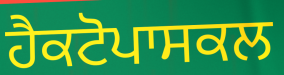
ਹੈਕਟੋਪਾਸਕਲ